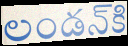
లండన్‌కి